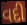
વદી